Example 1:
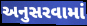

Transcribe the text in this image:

અનુસરવામાં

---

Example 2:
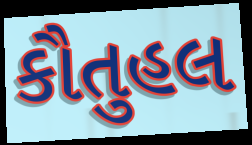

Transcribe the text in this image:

કૌતુહલ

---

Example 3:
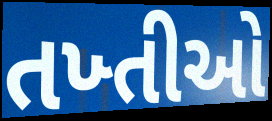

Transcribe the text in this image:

તખ્તીઓ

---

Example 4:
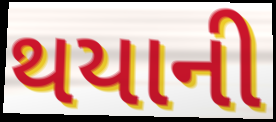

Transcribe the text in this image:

થયાની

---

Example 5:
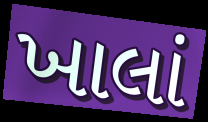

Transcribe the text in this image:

ખાલાં